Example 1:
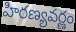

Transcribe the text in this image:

హిరణ్యవర్ణం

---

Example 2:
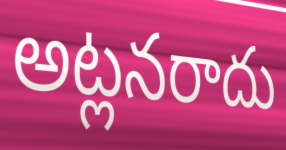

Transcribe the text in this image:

అట్లనరాదు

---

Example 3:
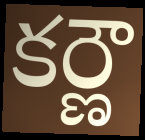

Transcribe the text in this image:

కర్ణౌ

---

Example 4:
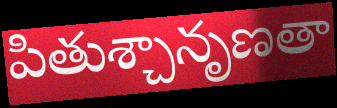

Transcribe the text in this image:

పితుశ్చానృణతా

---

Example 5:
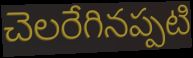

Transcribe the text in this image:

చెలరేగినప్పటి